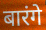
बारंगे